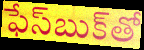
ఫేస్‌బుక్‌తో